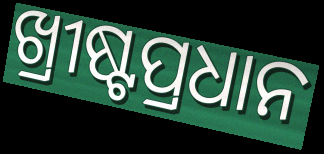
ଖ୍ରୀଷ୍ଟପ୍ରଧାନ